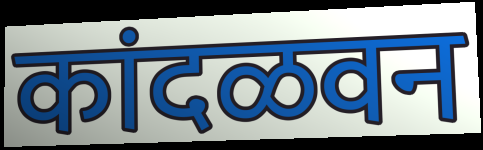
कांदळवन